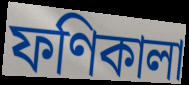
ফণিকালা